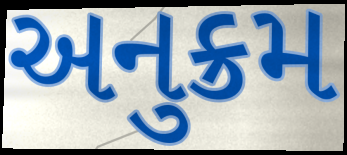
અનુક્રમ